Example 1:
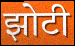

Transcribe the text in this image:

झोटी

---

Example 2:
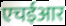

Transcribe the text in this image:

एचईआर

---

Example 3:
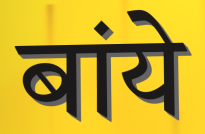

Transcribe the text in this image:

बांये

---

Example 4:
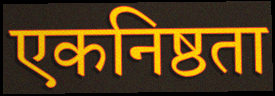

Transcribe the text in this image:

एकनिष्ठता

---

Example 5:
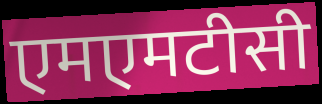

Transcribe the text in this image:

एमएमटीसी